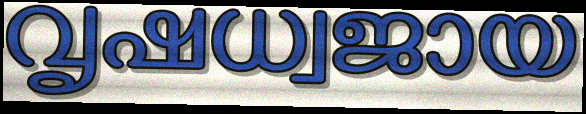
വൃഷധ്വജായ